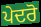
ਪੇਦਰੋ